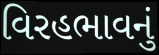
વિરહભાવનું